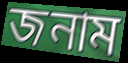
জনাম